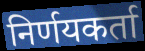
निर्णयकर्ता